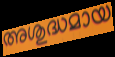
അശുദ്ധമായ